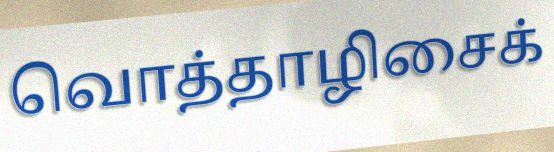
வொத்தாழிசைக்